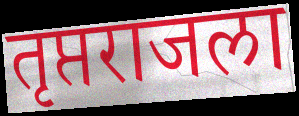
तृप्तराजला